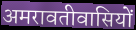
अमरावतीवासियों